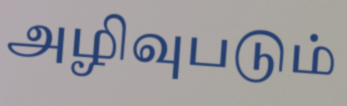
அழிவுபடும்